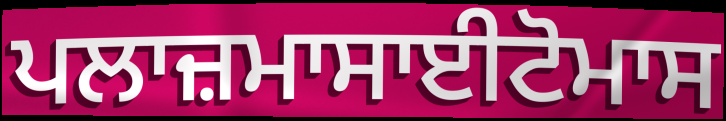
ਪਲਾਜ਼ਮਾਸਾਈਟੋਮਾਸ